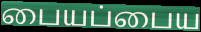
பையப்பைய